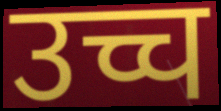
उच्च